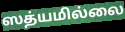
ஸத்யமில்லை